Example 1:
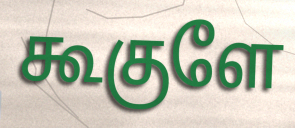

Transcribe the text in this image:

கூகுளே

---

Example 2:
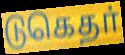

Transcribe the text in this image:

டுகெதர்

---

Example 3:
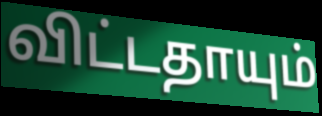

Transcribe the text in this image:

விட்டதாயும்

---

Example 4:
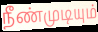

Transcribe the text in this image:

நீண்முடியும்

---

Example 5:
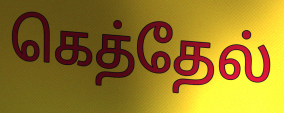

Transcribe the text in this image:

கெத்தேல்